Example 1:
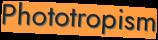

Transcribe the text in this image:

Phototropism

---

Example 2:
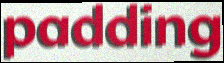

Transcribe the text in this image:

padding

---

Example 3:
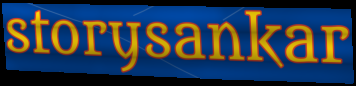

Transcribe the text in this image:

storysankar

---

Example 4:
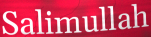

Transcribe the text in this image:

Salimullah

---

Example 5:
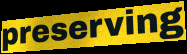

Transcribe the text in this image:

preserving